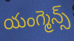
యంగ్మెన్స్